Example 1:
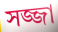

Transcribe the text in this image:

সজ্জা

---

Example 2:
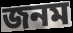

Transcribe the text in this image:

জনম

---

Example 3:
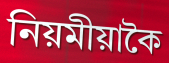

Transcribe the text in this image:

নিয়মীয়াকৈ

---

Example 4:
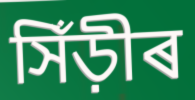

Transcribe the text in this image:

সিঁড়ীৰ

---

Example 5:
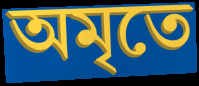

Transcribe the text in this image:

অমৃতে